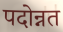
पदोन्नत